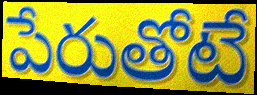
పేరుతోటే